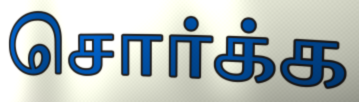
சொர்க்க